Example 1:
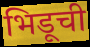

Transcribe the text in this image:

भिडूची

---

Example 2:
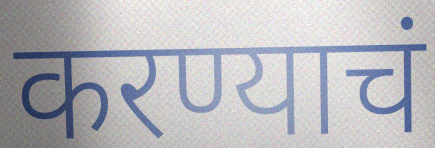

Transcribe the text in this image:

करण्याचं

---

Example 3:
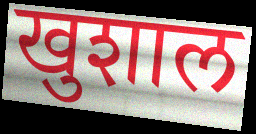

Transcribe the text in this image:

खुशाल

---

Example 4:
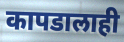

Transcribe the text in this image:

कापडालाही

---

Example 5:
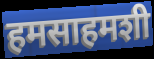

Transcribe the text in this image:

हमसाहमशी